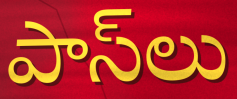
పాస్‌లు